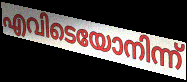
എവിടെയോനിന്ന്